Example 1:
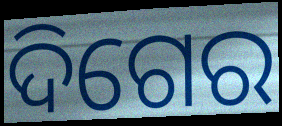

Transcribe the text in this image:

ଦିଗେର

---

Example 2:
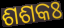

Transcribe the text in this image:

ଶଶକଃ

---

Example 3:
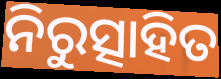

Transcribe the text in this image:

ନିରୁତ୍ସାହିତ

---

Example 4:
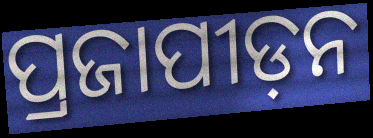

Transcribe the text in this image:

ପ୍ରଜାପୀଡ଼ନ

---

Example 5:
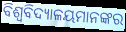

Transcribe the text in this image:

ବିଶ୍ଵବିଦ୍ୟାଳୟମାନଙ୍କର